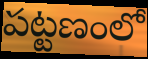
పట్టణంలో